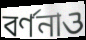
বর্ণনাও